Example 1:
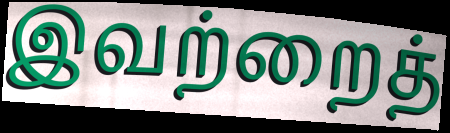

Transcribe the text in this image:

இவற்றைத்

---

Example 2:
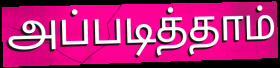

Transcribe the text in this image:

அப்படித்தாம்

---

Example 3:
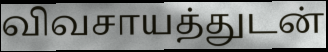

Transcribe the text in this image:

விவசாயத்துடன்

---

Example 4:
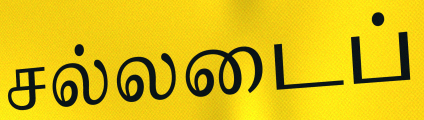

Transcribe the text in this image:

சல்லடைப்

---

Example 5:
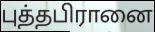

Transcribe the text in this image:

புத்தபிரானை